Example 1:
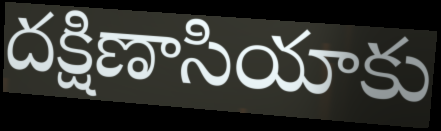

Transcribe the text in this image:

దక్షిణాసియాకు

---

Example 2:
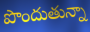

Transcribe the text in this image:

పొందుతున్నా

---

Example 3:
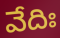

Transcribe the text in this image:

వేదిః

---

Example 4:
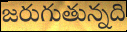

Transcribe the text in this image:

జరుగుతున్నది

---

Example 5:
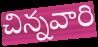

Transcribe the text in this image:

చిన్నవారి